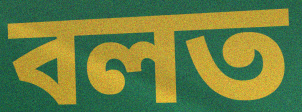
বলত